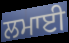
ਲਮਾਈ